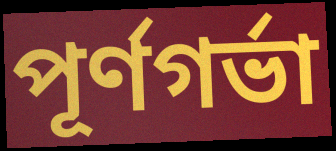
পূর্ণগর্ভা